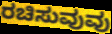
ರಚಿಸುವುವು